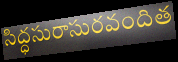
సిద్ధసురాసురవందిత